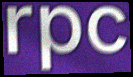
rpc